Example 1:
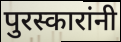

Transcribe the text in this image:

पुरस्कारांनी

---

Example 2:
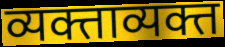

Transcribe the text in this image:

व्यक्ताव्यक्त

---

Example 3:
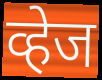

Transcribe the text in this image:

व्हेज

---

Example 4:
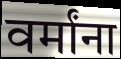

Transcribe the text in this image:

वर्मांना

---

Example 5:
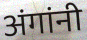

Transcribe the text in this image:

अंगांनी